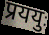
प्रययुः